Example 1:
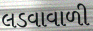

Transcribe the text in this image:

લડવાવાળી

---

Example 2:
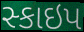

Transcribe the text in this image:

સ્કાઇપ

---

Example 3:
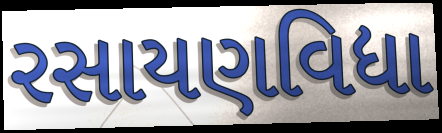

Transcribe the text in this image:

રસાયણવિદ્યા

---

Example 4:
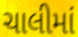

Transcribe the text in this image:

ચાલીમાં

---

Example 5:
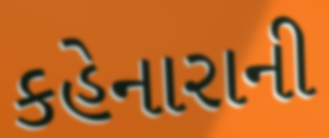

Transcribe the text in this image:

કહેનારાની